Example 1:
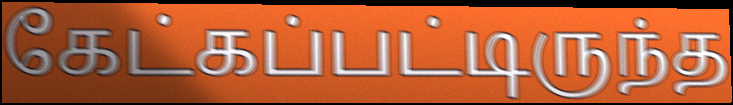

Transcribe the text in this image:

கேட்கப்பட்டிருந்த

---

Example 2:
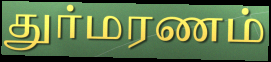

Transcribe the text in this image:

துர்மரணம்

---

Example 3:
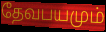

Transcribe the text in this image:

தேவபயமும்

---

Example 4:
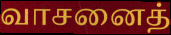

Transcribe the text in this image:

வாசனைத்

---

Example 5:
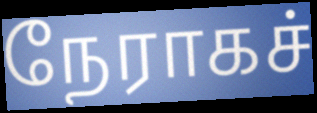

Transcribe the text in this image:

நேராகச்